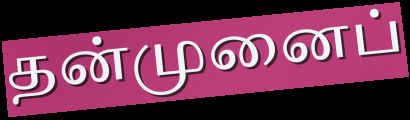
தன்முனைப்